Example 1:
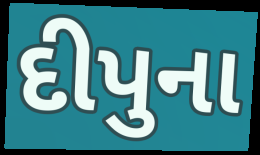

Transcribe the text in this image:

દીપુના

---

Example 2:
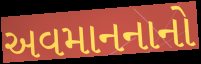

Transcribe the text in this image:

અવમાનનાનો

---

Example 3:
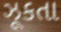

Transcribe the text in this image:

ઝૂકતા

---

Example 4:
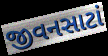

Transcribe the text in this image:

જીવનસાટાં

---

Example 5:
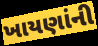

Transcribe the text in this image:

ખાયણાંની